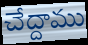
చేద్దాము